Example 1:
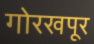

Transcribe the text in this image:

गोरखपूर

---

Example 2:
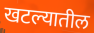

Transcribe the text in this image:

खटल्यातील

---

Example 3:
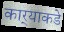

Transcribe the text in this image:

कार्याकडे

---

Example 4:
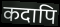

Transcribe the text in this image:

कदापि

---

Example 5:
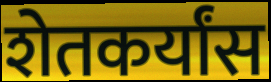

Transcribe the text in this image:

शेतकर्यांस